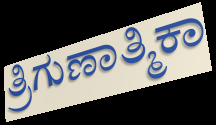
ತ್ರಿಗುಣಾತ್ಮಿಕಾ